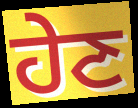
ਹੇਣ